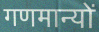
गणमान्यों